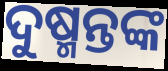
ଦୁଷ୍ମନ୍ତଙ୍କ